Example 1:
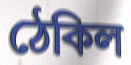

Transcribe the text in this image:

ঠেকিল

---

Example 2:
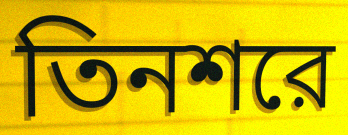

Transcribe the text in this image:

তিনশরে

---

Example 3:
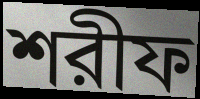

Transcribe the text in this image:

শরীফ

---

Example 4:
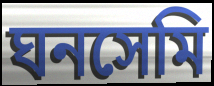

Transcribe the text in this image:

ঘনসেমি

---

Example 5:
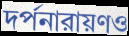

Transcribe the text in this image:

দর্পনারায়ণও